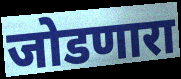
जोडणारा